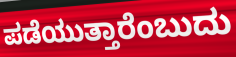
ಪಡೆಯುತ್ತಾರೆಂಬುದು